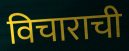
विचाराची